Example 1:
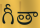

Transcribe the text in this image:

గీతా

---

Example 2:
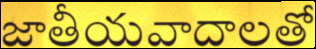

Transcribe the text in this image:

జాతీయవాదాలతో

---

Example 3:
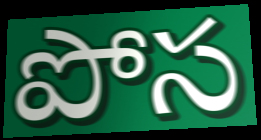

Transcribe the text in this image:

పోస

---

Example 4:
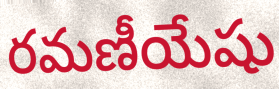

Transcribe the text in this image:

రమణీయేషు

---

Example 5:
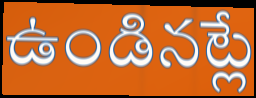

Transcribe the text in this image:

ఉండినట్లే